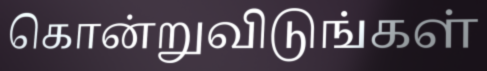
கொன்றுவிடுங்கள்